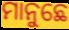
ମାନୁଛେ